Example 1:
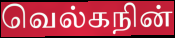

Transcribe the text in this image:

வெல்கநின்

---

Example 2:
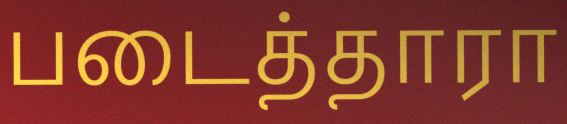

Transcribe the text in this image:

படைத்தாரா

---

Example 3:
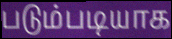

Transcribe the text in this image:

படும்படியாக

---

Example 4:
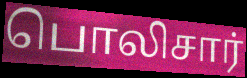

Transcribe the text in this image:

பொலிசார்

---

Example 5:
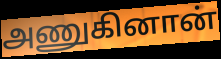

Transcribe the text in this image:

அணுகினான்